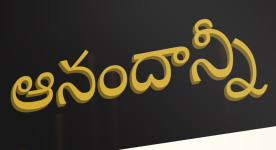
ఆనందాన్నీ